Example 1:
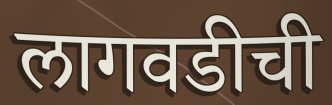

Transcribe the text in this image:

लागवडीची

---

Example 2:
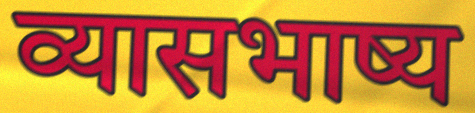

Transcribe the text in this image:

व्यासभाष्य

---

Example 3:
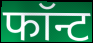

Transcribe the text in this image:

फॉन्ट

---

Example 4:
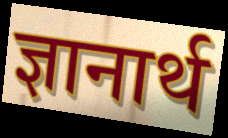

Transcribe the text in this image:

ज्ञानार्थ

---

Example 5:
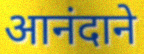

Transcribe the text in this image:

आनंदाने